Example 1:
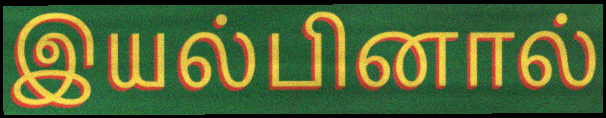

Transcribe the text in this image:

இயல்பினால்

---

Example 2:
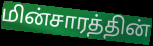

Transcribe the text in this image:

மின்சாரத்தின்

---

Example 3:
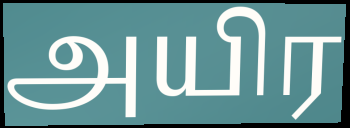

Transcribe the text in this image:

அயிர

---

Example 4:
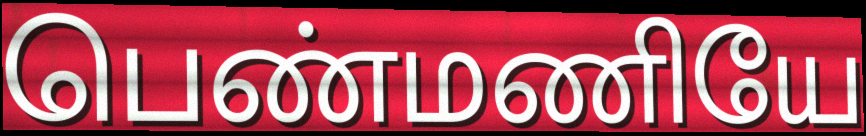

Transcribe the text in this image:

பெண்மணியே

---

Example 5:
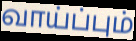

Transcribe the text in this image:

வாய்ப்பும்